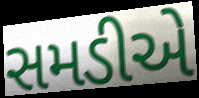
સમડીએ